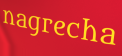
nagrecha